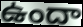
ఉందా